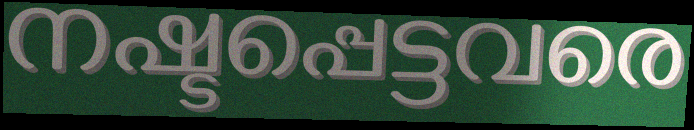
നഷ്ടപ്പെട്ടവരെ